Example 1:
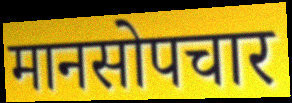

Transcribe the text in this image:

मानसोपचार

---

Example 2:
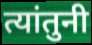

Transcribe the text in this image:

त्यांतुनी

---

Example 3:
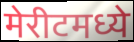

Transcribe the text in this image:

मेरीटमध्ये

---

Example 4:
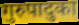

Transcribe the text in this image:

गुरुपादुका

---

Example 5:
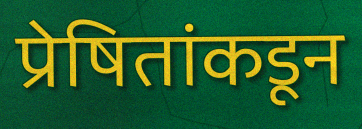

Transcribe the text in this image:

प्रेषितांकडून